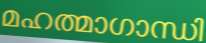
മഹത്മാഗാന്ധി